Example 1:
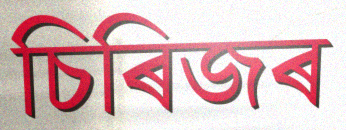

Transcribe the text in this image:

চিৰিজৰ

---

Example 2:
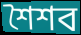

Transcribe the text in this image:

শৈশব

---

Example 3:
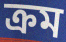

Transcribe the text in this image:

ক্ৰম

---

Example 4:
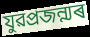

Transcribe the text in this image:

যুৱপ্ৰজন্মৰ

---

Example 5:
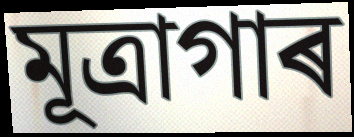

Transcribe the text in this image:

মূত্ৰাগাৰ